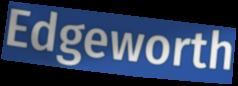
Edgeworth